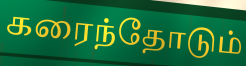
கரைந்தோடும்